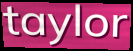
taylor